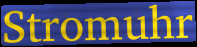
Stromuhr